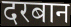
दरबान